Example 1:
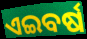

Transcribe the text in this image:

ଏଇବର୍ଷ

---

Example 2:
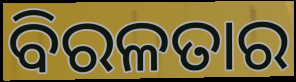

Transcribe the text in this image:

ବିରଳତାର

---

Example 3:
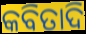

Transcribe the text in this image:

କବିତାଦି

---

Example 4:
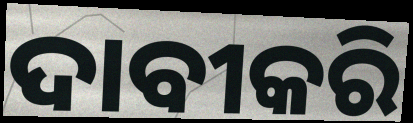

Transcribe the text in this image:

ଦାବୀକରି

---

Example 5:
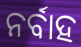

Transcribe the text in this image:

ନର୍ବାହ